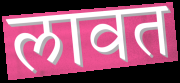
लावत